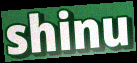
shinu